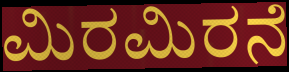
ಮಿರಮಿರನೆ